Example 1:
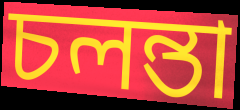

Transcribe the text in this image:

চলন্তা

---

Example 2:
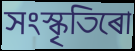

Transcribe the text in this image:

সংস্কৃতিৰো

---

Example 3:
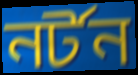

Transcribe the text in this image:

নৰ্টন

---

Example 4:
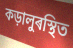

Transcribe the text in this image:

কড়ালুৰস্থিত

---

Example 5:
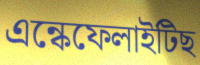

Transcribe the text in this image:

এন্কেফেলাইটিছ